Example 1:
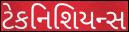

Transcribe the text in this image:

ટેકનિશિયન્સ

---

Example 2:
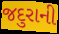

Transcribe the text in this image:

જદુરાની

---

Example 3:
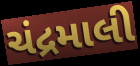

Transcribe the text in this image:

ચંદ્રમાલી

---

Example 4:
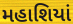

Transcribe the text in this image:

મહાશિયાં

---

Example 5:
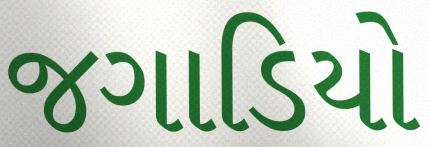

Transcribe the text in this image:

જગાડિયો